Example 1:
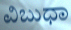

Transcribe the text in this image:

ವಿಬುಧಾ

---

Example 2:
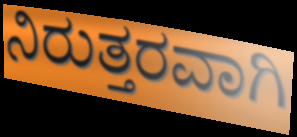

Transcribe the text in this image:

ನಿರುತ್ತರವಾಗಿ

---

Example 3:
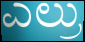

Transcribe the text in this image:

ಎಲ್ರು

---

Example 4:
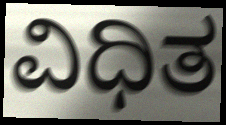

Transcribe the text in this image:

ವಿಧಿತ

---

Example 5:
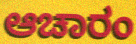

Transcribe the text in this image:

ಆಚಾರಂ